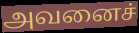
அவனைச்